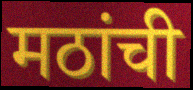
मठांची